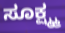
ಸೂಕ್ಷ್ಮ್ಮ